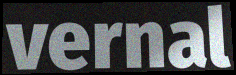
vernal